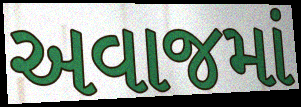
અવાજમાં